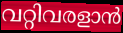
വറ്റിവരളാൻ